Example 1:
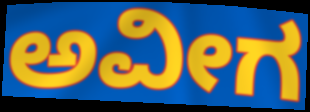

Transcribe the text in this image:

ಅವೀಗ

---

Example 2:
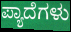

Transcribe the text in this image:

ಪ್ಯಾದೆಗಳು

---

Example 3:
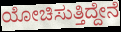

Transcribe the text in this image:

ಯೋಚಿಸುತ್ತಿದ್ದೇನೆ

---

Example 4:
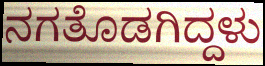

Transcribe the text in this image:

ನಗತೊಡಗಿದ್ದಳು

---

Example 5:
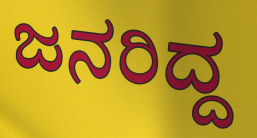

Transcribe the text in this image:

ಜನರಿದ್ದ